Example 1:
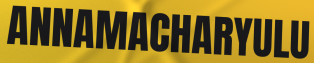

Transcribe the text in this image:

ANNAMACHARYULU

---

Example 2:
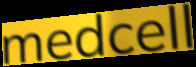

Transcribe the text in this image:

medcell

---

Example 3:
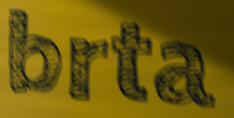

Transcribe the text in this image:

brta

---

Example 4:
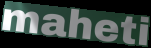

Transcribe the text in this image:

maheti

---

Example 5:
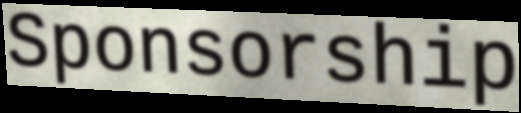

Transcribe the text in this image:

Sponsorship